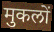
मुकलों